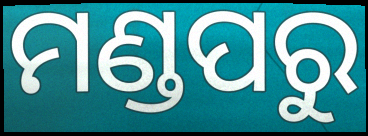
ମଣ୍ଡପରୁ